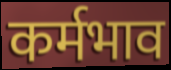
कर्मभाव